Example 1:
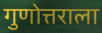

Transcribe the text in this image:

गुणोत्तराला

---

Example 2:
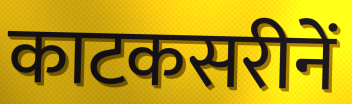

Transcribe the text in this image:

काटकसरीनें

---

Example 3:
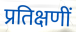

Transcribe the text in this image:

प्रतिक्षणीं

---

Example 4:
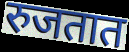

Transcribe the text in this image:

रुजतात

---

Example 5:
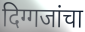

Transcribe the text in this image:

दिग्गजांचा